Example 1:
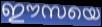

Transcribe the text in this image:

ഈസയെ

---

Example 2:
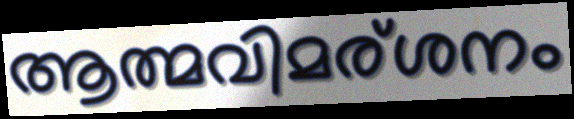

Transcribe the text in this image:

ആത്മവിമര്ശനം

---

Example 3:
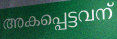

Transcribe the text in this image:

അകപ്പെട്ടവന്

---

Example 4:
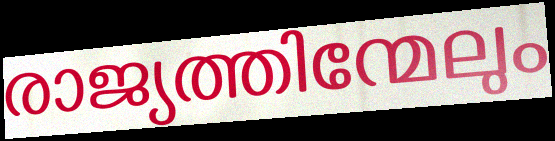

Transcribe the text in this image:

രാജ്യത്തിന്മേലും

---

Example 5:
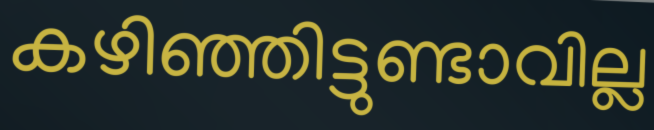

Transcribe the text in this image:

കഴിഞ്ഞിട്ടുണ്ടാവില്ല